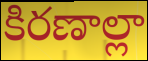
కిరణాల్లా